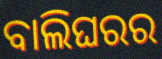
ବାଲିଘରର